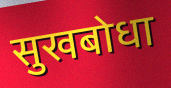
सुखबोधा